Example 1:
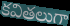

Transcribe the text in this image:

కవితలుగా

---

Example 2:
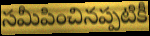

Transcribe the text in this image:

సమీపించినప్పటికీ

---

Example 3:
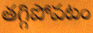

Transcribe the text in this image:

తగ్గిపోవటం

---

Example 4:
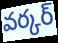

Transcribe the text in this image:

వర్కర్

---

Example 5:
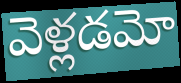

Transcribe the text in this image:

వెళ్లడమో